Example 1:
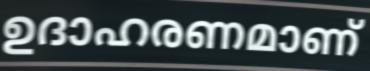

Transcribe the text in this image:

ഉദാഹരണമാണ്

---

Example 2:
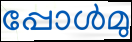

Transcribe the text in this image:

പ്പോൾമു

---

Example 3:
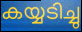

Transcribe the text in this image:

കയ്യടിച്ചു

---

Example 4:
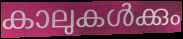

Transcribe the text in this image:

കാലുകൾക്കും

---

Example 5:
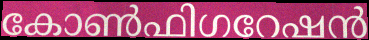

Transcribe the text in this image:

കോൺഫിഗറേഷൻ